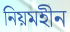
নিয়মহীন